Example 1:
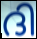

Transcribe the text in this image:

ദി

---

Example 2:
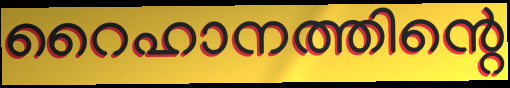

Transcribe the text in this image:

റൈഹാനത്തിന്റെ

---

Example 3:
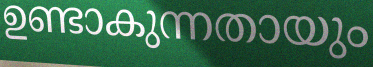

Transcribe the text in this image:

ഉണ്ടാകുന്നതായും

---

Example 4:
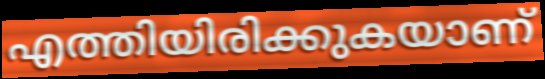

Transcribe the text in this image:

എത്തിയിരിക്കുകയാണ്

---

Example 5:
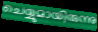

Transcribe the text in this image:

ചെയ്യുമായിരുന്നു